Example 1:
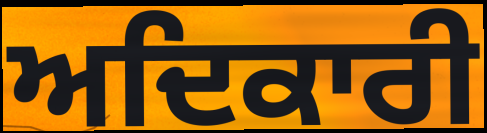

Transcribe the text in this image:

ਅਦਿਕਾਰੀ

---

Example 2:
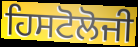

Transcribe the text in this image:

ਹਿਸਟੋਲੋਜੀ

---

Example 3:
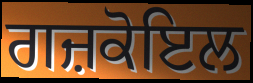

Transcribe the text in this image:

ਗਜ਼ਕੋਇਲ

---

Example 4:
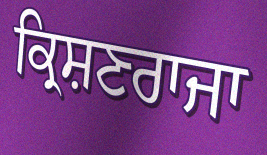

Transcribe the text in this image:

ਕ੍ਰਿਸ਼ਣਰਾਜਾ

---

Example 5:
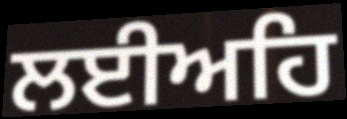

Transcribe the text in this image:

ਲਈਅਹਿ